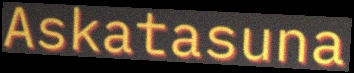
Askatasuna